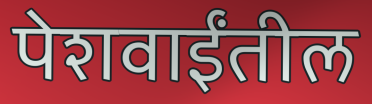
पेशवाईंतील